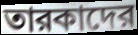
তারকাদের